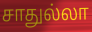
சாதுல்லா